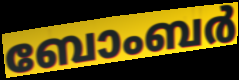
ബോംബർ